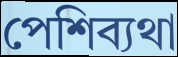
পেশিব্যথা